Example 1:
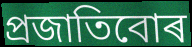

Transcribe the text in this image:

প্ৰজাতিবোৰ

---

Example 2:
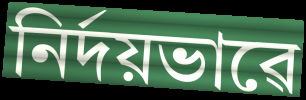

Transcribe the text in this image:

নিৰ্দয়ভাৱে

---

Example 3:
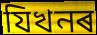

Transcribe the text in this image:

যিখনৰ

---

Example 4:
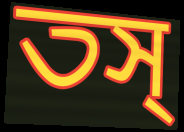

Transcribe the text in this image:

তস্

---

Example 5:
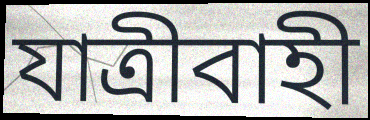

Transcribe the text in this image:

যাত্ৰীবাহী